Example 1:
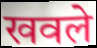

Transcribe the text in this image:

खवले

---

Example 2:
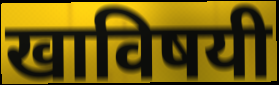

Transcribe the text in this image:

खाविषयी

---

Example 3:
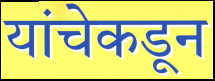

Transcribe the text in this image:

यांचेकडून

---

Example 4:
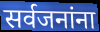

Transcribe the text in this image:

सर्वजनांना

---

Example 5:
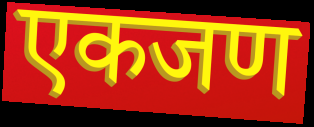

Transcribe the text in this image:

एकजण